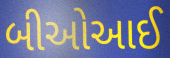
બીઓઆઈ